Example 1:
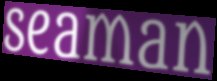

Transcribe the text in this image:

seaman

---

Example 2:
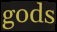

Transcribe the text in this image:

gods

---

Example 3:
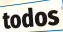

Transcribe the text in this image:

todos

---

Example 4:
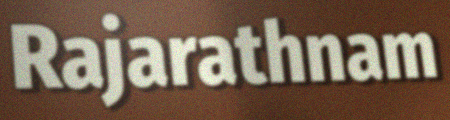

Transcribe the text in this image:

Rajarathnam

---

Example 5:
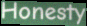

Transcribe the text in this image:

Honesty